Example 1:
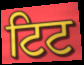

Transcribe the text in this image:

ਟਿਟ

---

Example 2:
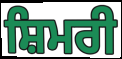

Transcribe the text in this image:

ਸ਼ਿਮਰੀ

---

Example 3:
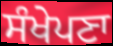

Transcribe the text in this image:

ਸੰਖੇਪਣਾ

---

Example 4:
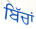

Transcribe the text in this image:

ਬਿੱਚਾਂ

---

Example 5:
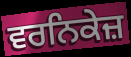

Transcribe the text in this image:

ਵਰਨਿਕੇਜ਼